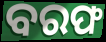
ବରଫ